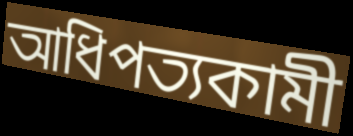
আধিপত্যকামী